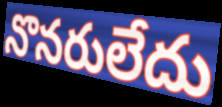
నొనరులేదు